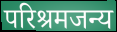
परिश्रमजन्य